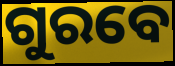
ଗୁରବେ